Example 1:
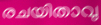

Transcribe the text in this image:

രചയിതാവു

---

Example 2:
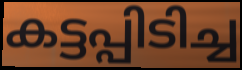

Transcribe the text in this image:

കട്ടപ്പിടിച്ച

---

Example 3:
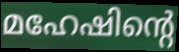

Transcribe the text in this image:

മഹേഷിന്റെ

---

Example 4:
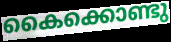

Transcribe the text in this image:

കൈക്കൊണ്ടു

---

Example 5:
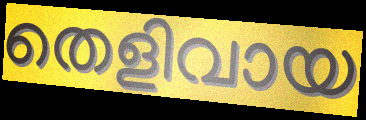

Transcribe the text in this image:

തെളിവായ